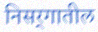
निसर्गातील